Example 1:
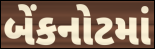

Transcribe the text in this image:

બેંકનોટમાં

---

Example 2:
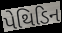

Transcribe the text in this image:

પેથિડિન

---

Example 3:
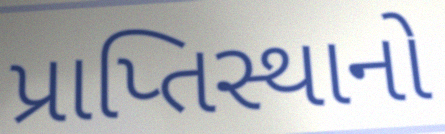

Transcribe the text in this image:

પ્રાપ્તિસ્થાનો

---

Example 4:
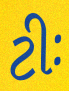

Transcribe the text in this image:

ટીઃ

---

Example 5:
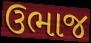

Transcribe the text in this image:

ઉભાજ